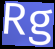
Rg